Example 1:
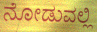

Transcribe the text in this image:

ನೋಡುವಲ್ಲಿ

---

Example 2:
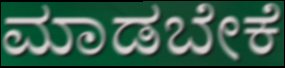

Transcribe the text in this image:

ಮಾಡಬೇಕೆ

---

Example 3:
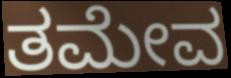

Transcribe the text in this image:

ತಮೇವ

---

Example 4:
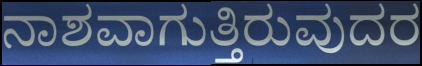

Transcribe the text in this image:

ನಾಶವಾಗುತ್ತಿರುವುದರ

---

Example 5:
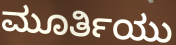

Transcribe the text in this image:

ಮೂರ್ತಿಯು